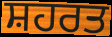
ਸ਼ਹਰਤ